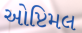
ઓપ્ટિમલ